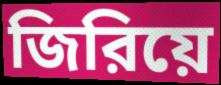
জিরিয়ে